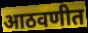
आठवणीत